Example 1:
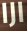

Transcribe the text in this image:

IJI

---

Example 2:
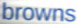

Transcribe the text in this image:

browns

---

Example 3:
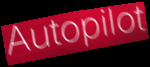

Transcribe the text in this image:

Autopilot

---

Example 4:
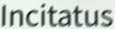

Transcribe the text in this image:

Incitatus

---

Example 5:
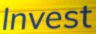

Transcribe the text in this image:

Invest